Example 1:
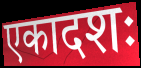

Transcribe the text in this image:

एकादशः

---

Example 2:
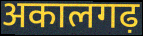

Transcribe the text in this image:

अकालगढ़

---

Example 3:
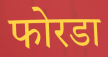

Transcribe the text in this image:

फोरडा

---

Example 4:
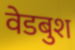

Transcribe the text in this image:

वेडबुश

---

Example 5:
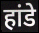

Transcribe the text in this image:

हांडे